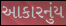
આકારનુંય